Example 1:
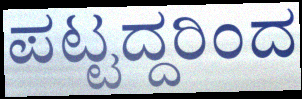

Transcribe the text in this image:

ಪಟ್ಟದ್ದರಿಂದ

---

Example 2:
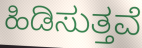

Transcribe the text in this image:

ಹಿಡಿಸುತ್ತವೆ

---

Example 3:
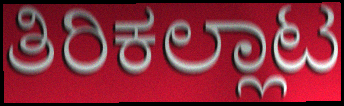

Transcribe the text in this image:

ತಿರಿಕಲ್ಲಾಟ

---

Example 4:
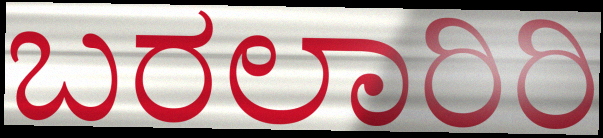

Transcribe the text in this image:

ಬರಲಾರಿರಿ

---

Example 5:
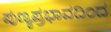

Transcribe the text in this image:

ಪುಣ್ಯಪ್ರಭಾವದಿಂದ